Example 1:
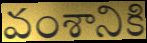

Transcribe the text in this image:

వంశానికి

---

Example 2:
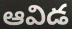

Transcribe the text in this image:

ఆవిడ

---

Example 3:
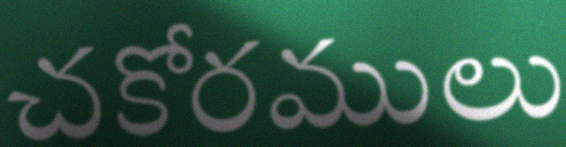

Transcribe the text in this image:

చకోరములు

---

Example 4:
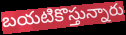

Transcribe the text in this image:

బయటికొస్తున్నారు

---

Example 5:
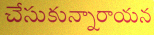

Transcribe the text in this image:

చేసుకున్నారాయన